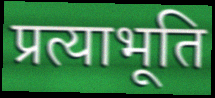
प्रत्याभूति